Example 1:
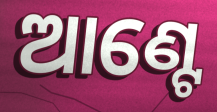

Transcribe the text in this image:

ଆଣ୍ଟେ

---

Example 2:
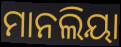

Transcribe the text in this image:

ମାନଲିୟା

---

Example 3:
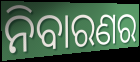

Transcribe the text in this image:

ନିବାରଣର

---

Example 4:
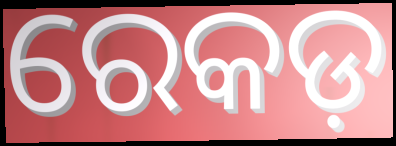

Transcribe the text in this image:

ରେକଡ଼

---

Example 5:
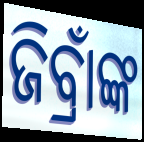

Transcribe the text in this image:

ଜିବ୍ରାଁଙ୍କ